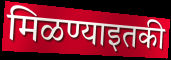
मिळण्याइतकी